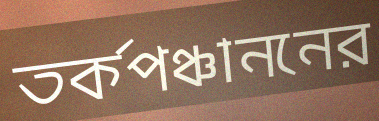
তর্কপঞ্চাননের